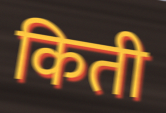
किती